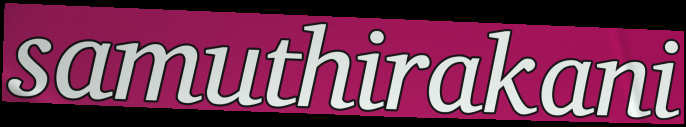
samuthirakani